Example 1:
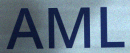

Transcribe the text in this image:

AML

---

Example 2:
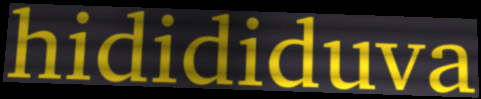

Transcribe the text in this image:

hidididuva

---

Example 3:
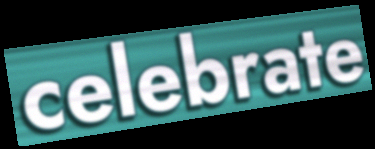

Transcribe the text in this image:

celebrate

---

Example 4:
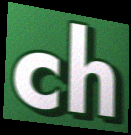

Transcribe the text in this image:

ch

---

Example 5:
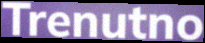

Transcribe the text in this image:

Trenutno